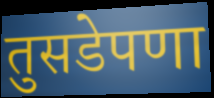
तुसडेपणा